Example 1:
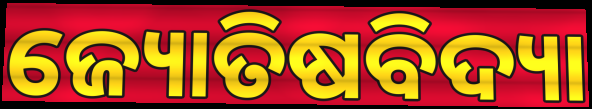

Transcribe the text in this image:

ଜ୍ୟୋତିଷବିଦ୍ୟା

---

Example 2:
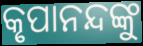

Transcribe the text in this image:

କୃପାନନ୍ଦଙ୍କୁ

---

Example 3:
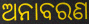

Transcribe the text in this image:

ଅନାବରଣ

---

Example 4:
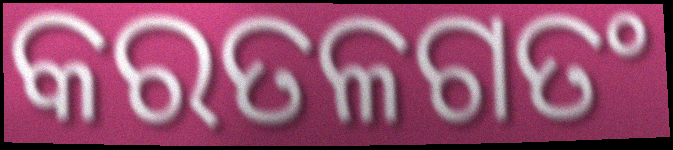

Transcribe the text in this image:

କରତଳଗତଂ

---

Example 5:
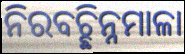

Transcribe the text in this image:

ନିରବଚ୍ଛିନ୍ନମାଳା